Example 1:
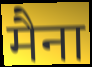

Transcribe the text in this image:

मैना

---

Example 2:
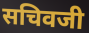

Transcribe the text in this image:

सचिवजी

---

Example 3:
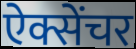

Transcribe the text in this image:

ऐक्सेंचर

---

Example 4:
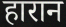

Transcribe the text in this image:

हारान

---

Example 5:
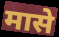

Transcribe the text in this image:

मासे